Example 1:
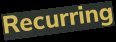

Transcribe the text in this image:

Recurring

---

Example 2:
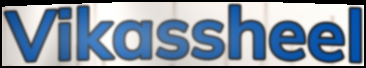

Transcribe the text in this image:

Vikassheel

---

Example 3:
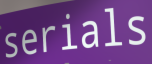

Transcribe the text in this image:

serials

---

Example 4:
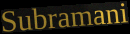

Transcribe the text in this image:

Subramani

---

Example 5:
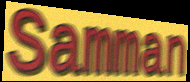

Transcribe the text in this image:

Samman